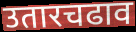
उतारचढाव